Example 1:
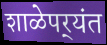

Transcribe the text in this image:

शाळेपर्यंत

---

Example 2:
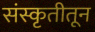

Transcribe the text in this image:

संस्कृतीतून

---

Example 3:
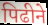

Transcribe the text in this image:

पिढीने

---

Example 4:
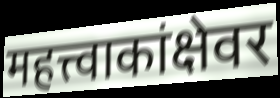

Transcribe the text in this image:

महत्त्वाकांक्षेवर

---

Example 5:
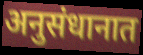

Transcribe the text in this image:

अनुसंधानात